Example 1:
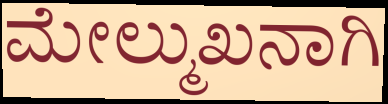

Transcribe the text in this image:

ಮೇಲ್ಮುಖನಾಗಿ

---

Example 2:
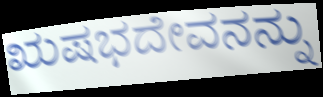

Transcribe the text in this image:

ಋಷಭದೇವನನ್ನು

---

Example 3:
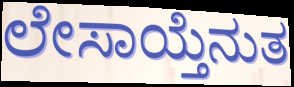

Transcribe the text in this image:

ಲೇಸಾಯ್ತೆನುತ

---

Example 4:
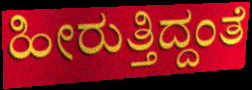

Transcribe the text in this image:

ಹೀರುತ್ತಿದ್ದಂತೆ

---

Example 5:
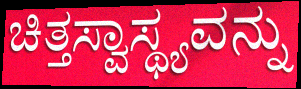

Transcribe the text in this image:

ಚಿತ್ತಸ್ವಾಸ್ಥ್ಯವನ್ನು